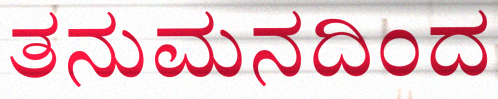
ತನುಮನದಿಂದ